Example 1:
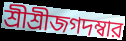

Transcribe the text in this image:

শ্রীশ্রীজগদম্বার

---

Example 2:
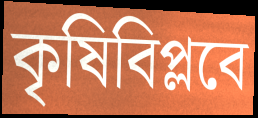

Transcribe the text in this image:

কৃষিবিপ্লবে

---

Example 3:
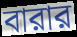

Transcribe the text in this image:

বারার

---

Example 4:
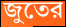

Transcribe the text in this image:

জুতের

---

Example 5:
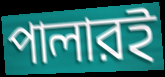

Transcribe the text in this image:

পালারই